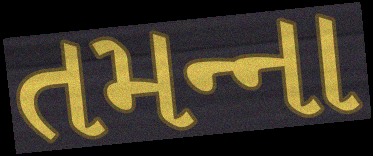
તમન્‍ના